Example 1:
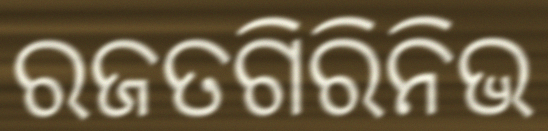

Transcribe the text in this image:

ରଜତଗିରିନିଭ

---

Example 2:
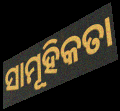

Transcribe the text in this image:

ସାମୂହିକତା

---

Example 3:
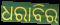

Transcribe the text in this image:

ଧରାବିର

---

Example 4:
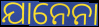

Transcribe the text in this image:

ଯାନେନା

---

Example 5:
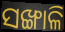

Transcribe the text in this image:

ସଙ୍ଖାଳି